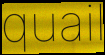
quail